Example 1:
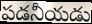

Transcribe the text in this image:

పడనీయడు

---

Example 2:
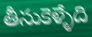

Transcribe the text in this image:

తీసుకెళ్ళేది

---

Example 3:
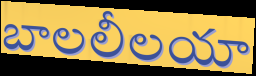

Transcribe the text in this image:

బాలలీలయా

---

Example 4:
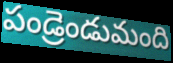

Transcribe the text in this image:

పండ్రెండుమంది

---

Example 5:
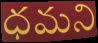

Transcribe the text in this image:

ధమని